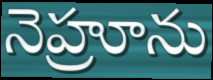
నెహ్రూను